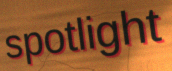
spotlight